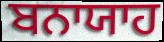
ਬਨਾਯਾਹ